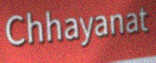
Chhayanat